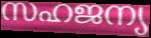
സഹജന്യ